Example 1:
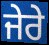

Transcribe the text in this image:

ਜੇਰੇ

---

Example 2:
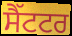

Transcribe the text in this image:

ਸੈੱਟਟਰ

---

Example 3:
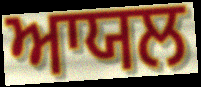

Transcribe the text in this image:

ਆਯਲ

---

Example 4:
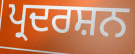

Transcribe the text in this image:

ਪ੍ਰਦਰਸ਼ਨ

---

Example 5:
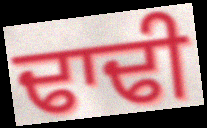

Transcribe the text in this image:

ਢਾਢੀ